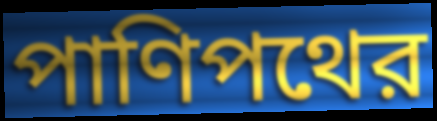
পাণিপথের